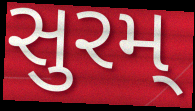
સુરમ્